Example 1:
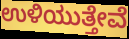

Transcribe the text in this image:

ಉಳಿಯುತ್ತೇವೆ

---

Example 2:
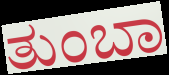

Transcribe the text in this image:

ತುಂಬಾ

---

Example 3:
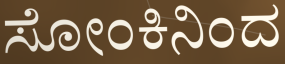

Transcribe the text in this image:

ಸೋಂಕಿನಿಂದ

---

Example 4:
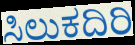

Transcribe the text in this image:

ಸಿಲುಕದಿರಿ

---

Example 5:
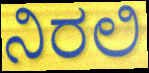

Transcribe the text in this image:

ನಿರಲಿ